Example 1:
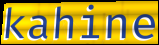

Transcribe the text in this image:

kahine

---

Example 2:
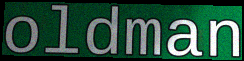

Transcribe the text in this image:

oldman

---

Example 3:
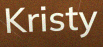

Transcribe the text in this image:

Kristy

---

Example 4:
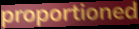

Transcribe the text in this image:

proportioned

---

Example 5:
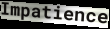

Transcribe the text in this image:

Impatience